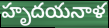
హృదయనాళ